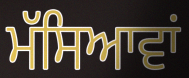
ਮੱਸਿਆਵਾਂ